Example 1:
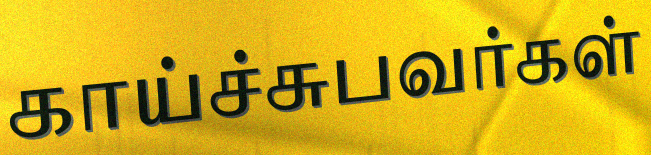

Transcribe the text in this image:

காய்ச்சுபவர்கள்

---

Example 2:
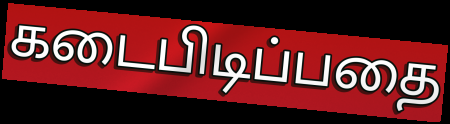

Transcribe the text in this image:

கடைபிடிப்பதை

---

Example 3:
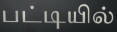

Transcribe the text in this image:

பட்டியில்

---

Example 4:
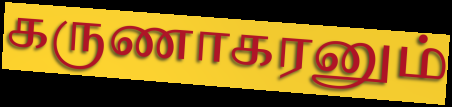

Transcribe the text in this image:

கருணாகரனும்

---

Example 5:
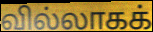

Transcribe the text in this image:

வில்லாகக்